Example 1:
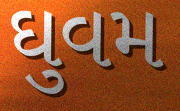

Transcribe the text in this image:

ઘુવમ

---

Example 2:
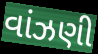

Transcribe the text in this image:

વાંઝણી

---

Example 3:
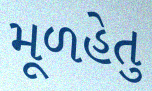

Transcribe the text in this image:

મૂળહેતુ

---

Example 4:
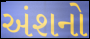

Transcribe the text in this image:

અંશનો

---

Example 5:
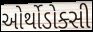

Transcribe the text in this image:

ઓર્થોડોક્સી